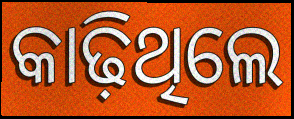
କାଢ଼ିଥିଲେ